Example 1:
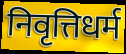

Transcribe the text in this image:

निवृत्तिधर्म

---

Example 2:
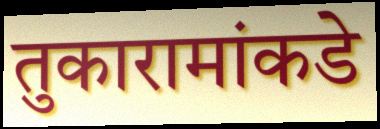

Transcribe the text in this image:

तुकारामांकडे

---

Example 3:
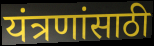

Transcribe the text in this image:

यंत्रणांसाठी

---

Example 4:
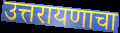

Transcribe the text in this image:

उत्तरायणाचा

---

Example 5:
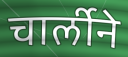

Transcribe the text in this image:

चार्लीने